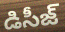
డిసీజ్